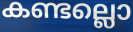
കണ്ടല്ലൊ